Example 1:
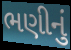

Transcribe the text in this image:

ભણીનું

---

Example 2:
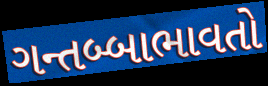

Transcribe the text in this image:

ગન્તબ્બાભાવતો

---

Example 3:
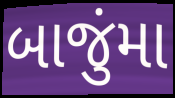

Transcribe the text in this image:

બાજુંમા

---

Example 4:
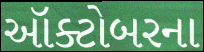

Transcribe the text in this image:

ઑક્ટોબરના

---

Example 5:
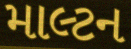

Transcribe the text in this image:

માલ્ટન